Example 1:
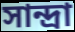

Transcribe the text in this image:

সান্দ্রা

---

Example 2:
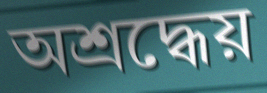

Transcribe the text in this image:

অশ্রদ্ধেয়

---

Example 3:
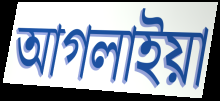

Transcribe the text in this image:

আগলাইয়া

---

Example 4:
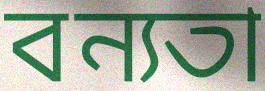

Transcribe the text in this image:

বন্যতা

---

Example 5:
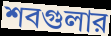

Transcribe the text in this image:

শবগুলার